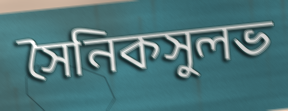
সৈনিকসুলভ